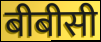
बीबीसी